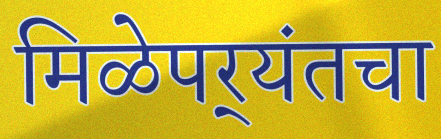
मिळेपर्यंतचा